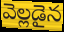
వెల్లడైన